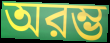
অরম্ভ